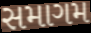
સમાગમ